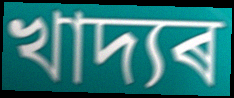
খাদ্যৰ